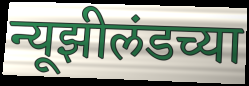
न्यूझीलंडच्या